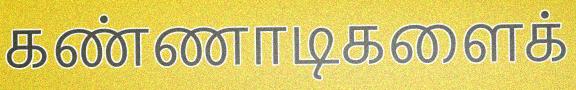
கண்ணாடிகளைக்